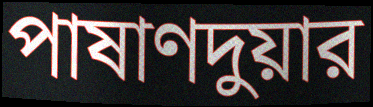
পাষাণদুয়ার